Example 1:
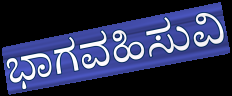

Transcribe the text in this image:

ಭಾಗವಹಿಸುವಿ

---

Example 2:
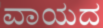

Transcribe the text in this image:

ವಾಯದ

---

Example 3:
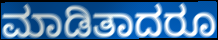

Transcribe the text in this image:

ಮಾಡಿತಾದರೂ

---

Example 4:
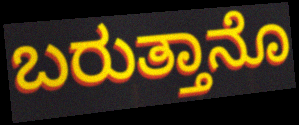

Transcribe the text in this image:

ಬರುತ್ತಾನೊ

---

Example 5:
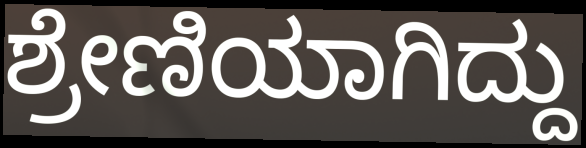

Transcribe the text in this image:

ಶ್ರೇಣಿಯಾಗಿದ್ದು